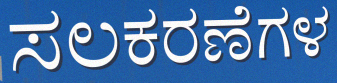
ಸಲಕರಣೆಗಳ